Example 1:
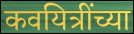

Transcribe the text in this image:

कवयित्रींच्या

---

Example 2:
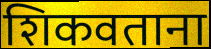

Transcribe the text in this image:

शिकवताना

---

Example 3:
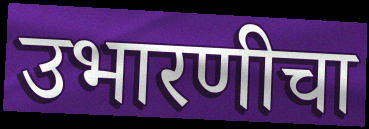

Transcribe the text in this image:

उभारणीचा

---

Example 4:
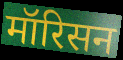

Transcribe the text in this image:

मॉरिसन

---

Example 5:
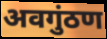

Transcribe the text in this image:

अवगुंठण